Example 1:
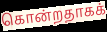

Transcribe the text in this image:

கொன்றதாகக்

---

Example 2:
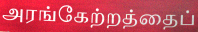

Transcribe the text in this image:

அரங்கேற்றத்தைப்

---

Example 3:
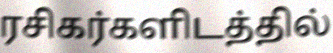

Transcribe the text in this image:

ரசிகர்களிடத்தில்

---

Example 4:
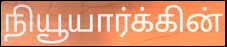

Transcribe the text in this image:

நியூயார்க்கின்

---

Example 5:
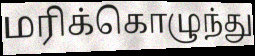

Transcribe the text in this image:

மரிக்கொழுந்து